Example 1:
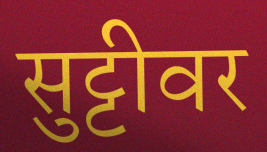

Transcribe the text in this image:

सुट्टीवर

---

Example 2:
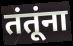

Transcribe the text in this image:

तंतूंना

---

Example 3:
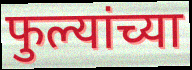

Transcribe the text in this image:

फुल्यांच्या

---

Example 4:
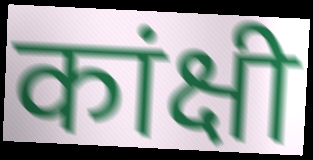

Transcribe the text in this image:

कांक्षी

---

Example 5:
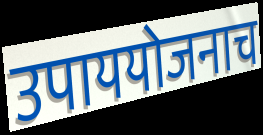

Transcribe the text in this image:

उपाययोजनाच